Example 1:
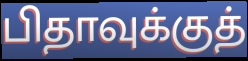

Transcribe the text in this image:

பிதாவுக்குத்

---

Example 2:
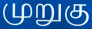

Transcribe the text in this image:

முறுகு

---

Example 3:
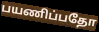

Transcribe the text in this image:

பயணிப்பதோ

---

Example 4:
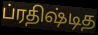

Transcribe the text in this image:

ப்ரதிஷ்டித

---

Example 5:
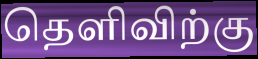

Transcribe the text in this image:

தெளிவிற்கு